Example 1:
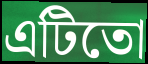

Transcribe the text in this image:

এটিতো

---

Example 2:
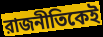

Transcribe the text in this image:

রাজনীতিকেই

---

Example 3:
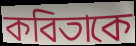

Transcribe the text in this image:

কবিতাকে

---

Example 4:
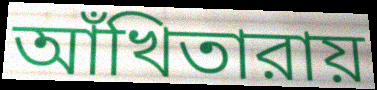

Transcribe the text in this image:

আঁখিতারায়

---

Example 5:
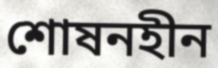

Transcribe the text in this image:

শোষনহীন